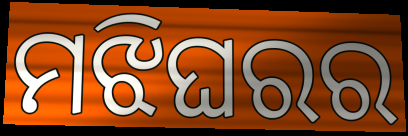
ମଝିଘରର